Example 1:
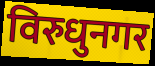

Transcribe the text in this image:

विरुधुनगर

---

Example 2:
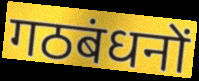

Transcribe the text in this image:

गठबंधनों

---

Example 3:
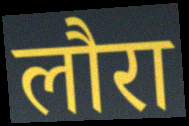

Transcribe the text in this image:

लौरा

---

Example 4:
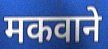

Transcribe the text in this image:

मकवाने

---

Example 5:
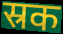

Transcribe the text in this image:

स्रक